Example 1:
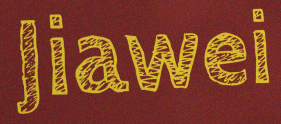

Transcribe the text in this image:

Jiawei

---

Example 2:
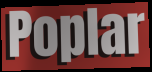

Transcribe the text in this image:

Poplar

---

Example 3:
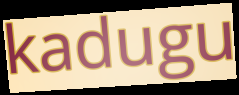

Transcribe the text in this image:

kadugu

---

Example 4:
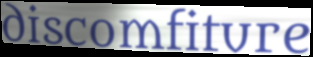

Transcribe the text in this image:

discomfiture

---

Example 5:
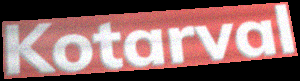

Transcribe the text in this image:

Kotarval